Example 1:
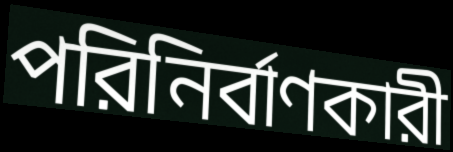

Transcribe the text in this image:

পরিনির্বাণকারী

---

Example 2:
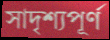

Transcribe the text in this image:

সাদৃশ্যপূর্ণ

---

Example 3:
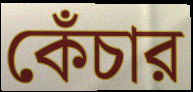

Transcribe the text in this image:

কেঁচার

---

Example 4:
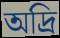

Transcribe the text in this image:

অদ্রি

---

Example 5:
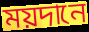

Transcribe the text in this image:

ময়দানে